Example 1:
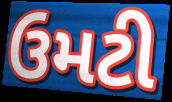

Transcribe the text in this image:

ઉમટી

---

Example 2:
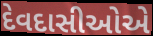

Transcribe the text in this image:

દેવદાસીઓએ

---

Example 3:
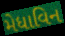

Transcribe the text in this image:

મેધાવિન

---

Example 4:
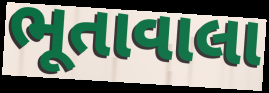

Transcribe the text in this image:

ભૂતાવાલા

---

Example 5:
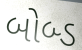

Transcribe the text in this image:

બોબ્ડ